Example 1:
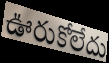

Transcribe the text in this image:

ఊరుకోలేదు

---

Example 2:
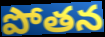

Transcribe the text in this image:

పోతన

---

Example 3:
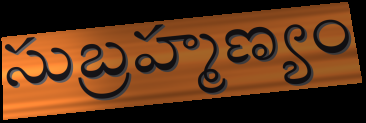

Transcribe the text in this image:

సుబ్రహ్మణ్యం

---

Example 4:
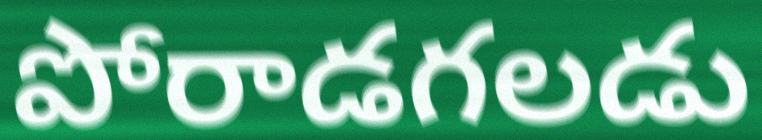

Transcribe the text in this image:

పోరాడగలడు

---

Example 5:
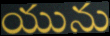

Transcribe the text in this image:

యును